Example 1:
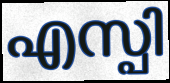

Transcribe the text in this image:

എസ്പി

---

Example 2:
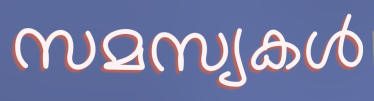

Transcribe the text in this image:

സമസ്യകൾ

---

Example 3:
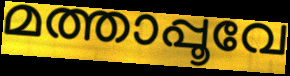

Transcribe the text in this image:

മത്താപ്പൂവേ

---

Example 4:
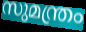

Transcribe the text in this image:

സുമന്ത്രം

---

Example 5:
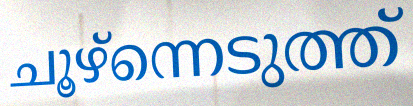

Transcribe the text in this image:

ചൂഴ്ന്നെടുത്ത്